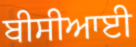
ਬੀਸੀਆਈ